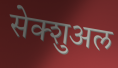
सेक्शुअल